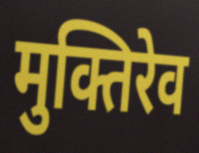
मुक्तिरेव